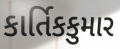
કાર્તિકકુમાર